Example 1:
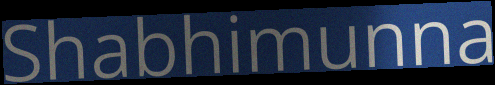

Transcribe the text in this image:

Shabhimunna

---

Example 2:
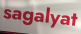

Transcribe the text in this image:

sagalyat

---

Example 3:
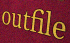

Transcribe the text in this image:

outfile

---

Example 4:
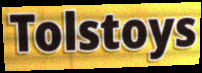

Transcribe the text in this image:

Tolstoys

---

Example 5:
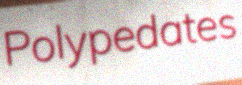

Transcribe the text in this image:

Polypedates